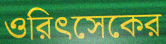
ওরিৎসেকের